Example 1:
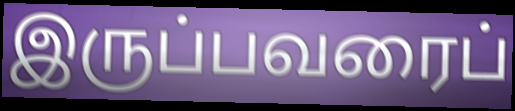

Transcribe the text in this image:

இருப்பவரைப்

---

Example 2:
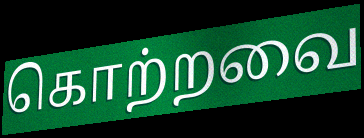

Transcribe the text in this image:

கொற்றவை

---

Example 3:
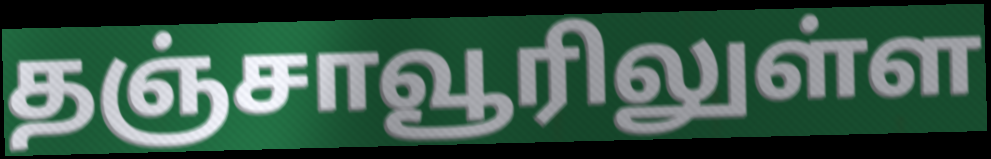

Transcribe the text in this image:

தஞ்சாவூரிலுள்ள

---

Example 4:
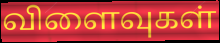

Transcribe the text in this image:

விளைவுகள்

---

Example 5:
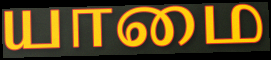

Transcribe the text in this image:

யாமை